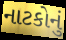
નાટકોનું